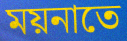
ময়নাতে